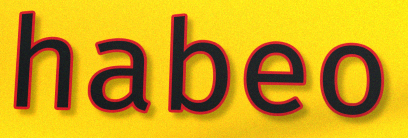
habeo